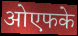
ओएफके